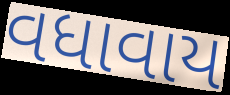
વધાવાય